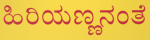
ಹಿರಿಯಣ್ಣನಂತೆ